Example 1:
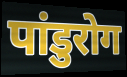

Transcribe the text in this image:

पांडुरोग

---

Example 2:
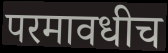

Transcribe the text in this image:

परमावधीच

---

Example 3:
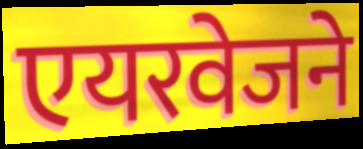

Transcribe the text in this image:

एयरवेजने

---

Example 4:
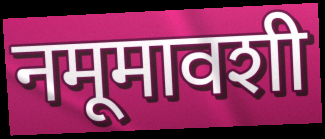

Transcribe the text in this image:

नमूमावशी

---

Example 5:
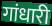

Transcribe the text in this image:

गांधारी